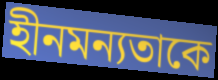
হীনমন্যতাকে